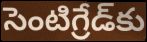
సెంటిగ్రేడ్‌కు